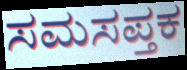
ಸಮಸಪ್ತಕ